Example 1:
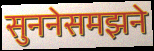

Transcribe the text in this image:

सुननेसमझने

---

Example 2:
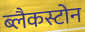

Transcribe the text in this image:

ब्लैकस्टोन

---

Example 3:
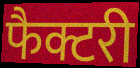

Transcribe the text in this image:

फैक्टरी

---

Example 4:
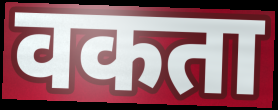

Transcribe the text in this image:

वकता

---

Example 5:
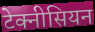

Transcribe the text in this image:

टेक्नीसियन